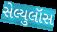
સેલ્યુલૉસ